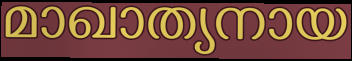
മാഖാത്യനായ